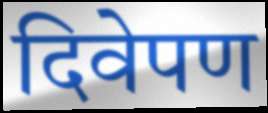
दिवेपण